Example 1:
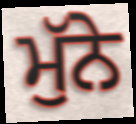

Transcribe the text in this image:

ਮੁੱਨੇ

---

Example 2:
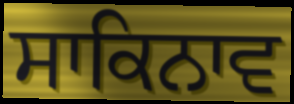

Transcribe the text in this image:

ਸਾਕਿਨਾਵ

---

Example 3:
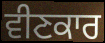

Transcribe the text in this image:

ਵੀਣਕਾਰ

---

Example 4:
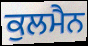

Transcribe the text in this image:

ਕੁਲਮੈਨ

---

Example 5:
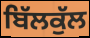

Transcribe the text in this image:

ਬਿੱਲਕੁੱਲ